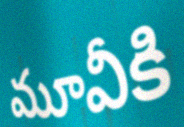
మూవీకి